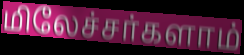
மிலேச்சர்களாம்